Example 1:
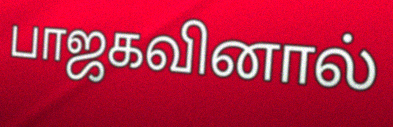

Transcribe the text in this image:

பாஜகவினால்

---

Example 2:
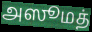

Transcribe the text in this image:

அஸூமத்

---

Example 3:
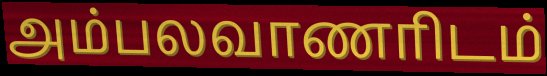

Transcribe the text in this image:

அம்பலவாணரிடம்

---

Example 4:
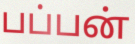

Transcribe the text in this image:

பப்பன்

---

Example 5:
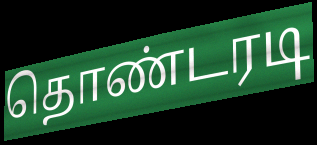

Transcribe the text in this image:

தொண்டரடி